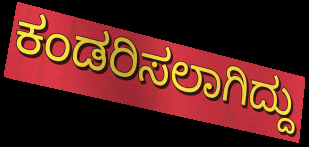
ಕಂಡರಿಸಲಾಗಿದ್ದು